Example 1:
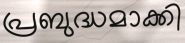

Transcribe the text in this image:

പ്രബുദ്ധമാക്കി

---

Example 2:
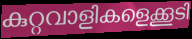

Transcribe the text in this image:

കുറ്റവാളികളെക്കൂടി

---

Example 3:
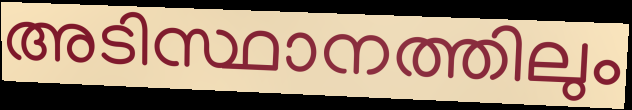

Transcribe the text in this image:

അടിസ്ഥാനത്തിലും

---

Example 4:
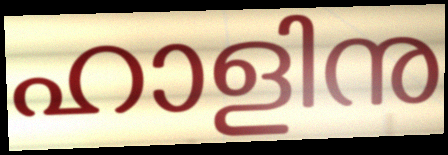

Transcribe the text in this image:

ഹാളിനു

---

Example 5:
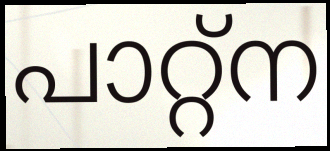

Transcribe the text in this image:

പാറ്റ്ന